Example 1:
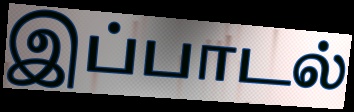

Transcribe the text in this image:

இப்பாடல்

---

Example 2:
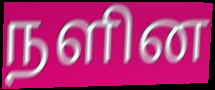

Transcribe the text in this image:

நளின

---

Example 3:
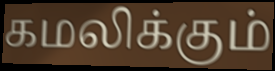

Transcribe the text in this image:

கமலிக்கும்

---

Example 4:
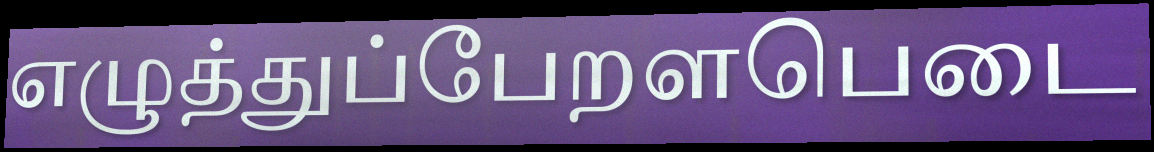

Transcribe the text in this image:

எழுத்துப்பேறளபெடை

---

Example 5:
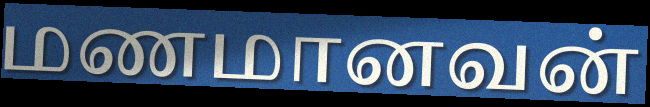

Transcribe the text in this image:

மணமானவன்